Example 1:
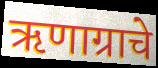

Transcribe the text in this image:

ऋणाग्राचे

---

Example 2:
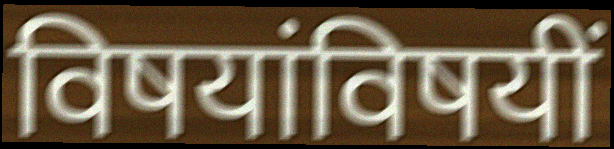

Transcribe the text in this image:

विषयांविषयीं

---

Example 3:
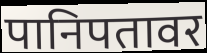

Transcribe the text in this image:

पानिपतावर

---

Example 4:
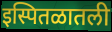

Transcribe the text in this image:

इस्पितळातली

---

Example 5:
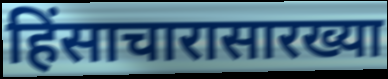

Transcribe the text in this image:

हिंसाचारासारख्या